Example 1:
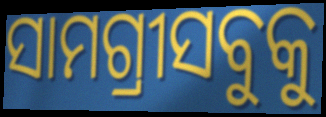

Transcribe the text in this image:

ସାମଗ୍ରୀସବୁକୁ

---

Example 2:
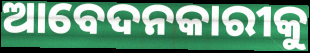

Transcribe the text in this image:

ଆବେଦନକାରୀକୁ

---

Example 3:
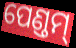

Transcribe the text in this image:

ପେଣ୍ଡମ୍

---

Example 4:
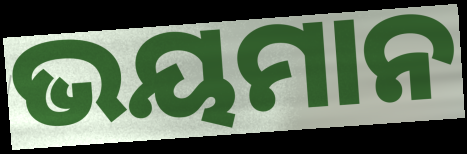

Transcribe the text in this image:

ଭୟମାନ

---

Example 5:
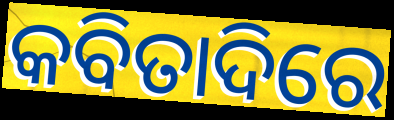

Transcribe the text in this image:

କବିତାଦିରେ